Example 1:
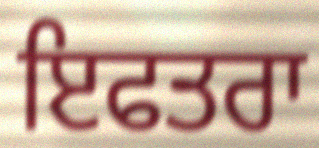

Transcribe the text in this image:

ਇਫਤਰਾ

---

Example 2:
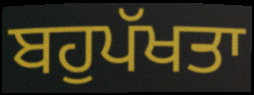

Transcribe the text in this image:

ਬਹੁਪੱਖਤਾ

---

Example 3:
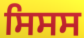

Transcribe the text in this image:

ਸਿਸਸ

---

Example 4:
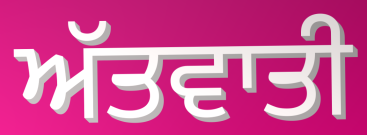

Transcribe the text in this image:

ਅੱਤਵਾਤੀ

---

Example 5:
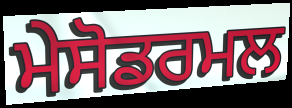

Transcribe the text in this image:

ਮੇਸੋਡਰਮਲ